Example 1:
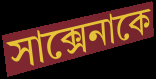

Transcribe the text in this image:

সাক্সেনাকে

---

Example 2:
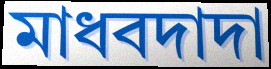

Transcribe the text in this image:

মাধবদাদা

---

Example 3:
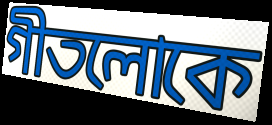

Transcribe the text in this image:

গীতলোকে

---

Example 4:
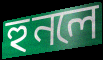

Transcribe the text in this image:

হুনলে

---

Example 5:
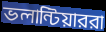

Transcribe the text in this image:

ভলান্টিয়াররা